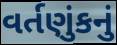
વર્તણુંકનું